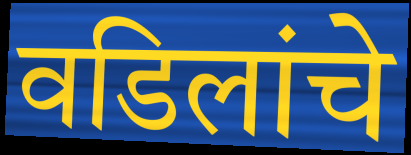
वडिलांचे